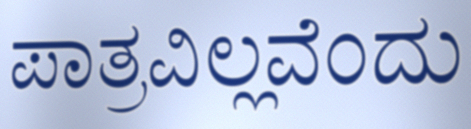
ಪಾತ್ರವಿಲ್ಲವೆಂದು